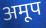
अमूप